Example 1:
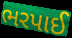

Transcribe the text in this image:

ભરપાઈ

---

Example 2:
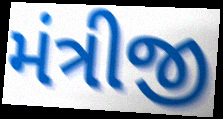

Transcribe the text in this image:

મંત્રીજી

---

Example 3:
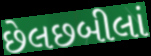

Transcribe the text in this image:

છેલછબીલાં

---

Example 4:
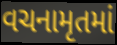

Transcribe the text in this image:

વચનામૃતમાં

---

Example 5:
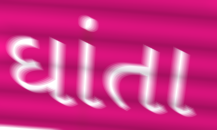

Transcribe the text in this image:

ઘાંતા